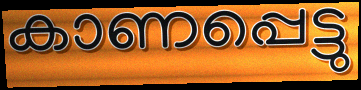
കാണപ്പെട്ടു